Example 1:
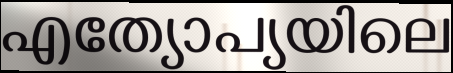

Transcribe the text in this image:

എത്യോപ്യയിലെ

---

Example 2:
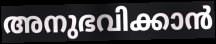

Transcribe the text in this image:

അനുഭവിക്കാൻ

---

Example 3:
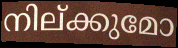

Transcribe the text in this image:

നില്ക്കുമോ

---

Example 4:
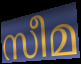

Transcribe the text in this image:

സീമ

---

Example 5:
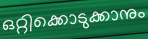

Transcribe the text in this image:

ഒറ്റിക്കൊടുക്കാനും